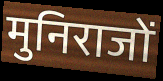
मुनिराजों